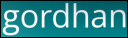
gordhan